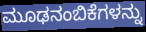
ಮೂಢನಂಬಿಕೆಗಳನ್ನು